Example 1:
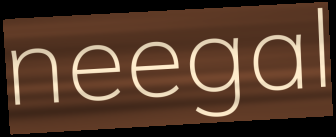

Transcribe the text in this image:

neegal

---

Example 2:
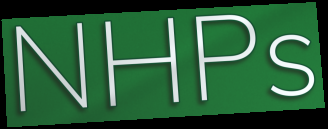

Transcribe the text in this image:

NHPs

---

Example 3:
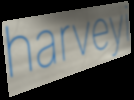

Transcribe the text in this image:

harveyi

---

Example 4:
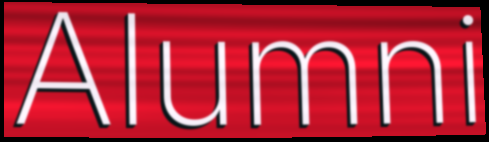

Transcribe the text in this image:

Alumni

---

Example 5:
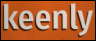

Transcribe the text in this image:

keenly